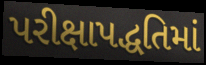
પરીક્ષાપદ્ધતિમાં